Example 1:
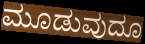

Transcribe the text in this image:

ಮೂಡುವುದೂ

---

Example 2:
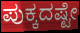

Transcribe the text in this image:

ಪುಕ್ಕದಷ್ಟೇ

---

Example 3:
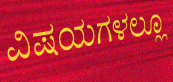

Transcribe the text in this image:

ವಿಷಯಗಳಲ್ಲೂ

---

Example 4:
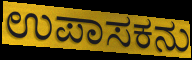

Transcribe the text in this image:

ಉಪಾಸಕನು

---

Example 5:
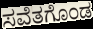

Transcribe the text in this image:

ಸವೆತಗೊಂಡ